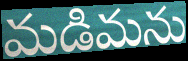
మడిమను